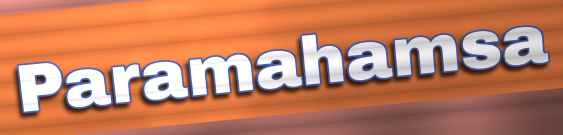
Paramahamsa